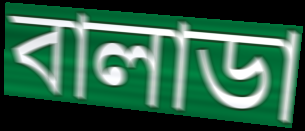
বালাডা